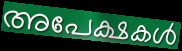
അപേക്ഷകൾ